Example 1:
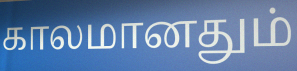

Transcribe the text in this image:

காலமானதும்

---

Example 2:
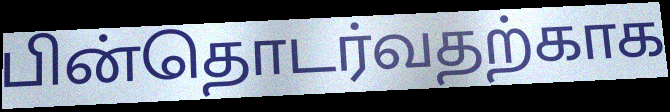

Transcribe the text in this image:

பின்தொடர்வதற்காக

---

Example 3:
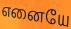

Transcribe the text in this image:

எனையே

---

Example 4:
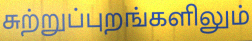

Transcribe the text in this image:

சுற்றுப்புறங்களிலும்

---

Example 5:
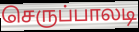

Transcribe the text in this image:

செருப்பாலடி